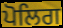
ਪੋਲਿਗ